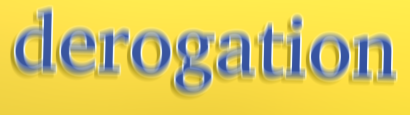
derogation